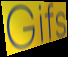
Gifs